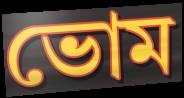
ভোম